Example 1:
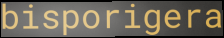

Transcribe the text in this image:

bisporigera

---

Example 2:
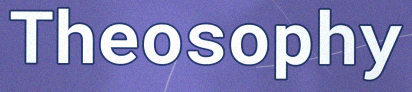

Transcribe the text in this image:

Theosophy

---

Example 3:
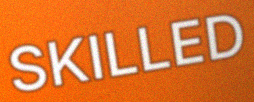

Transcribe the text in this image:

SKILLED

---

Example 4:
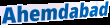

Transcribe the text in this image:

Ahemdabad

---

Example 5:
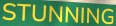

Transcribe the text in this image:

STUNNING